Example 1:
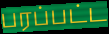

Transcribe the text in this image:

பரப்பட்ட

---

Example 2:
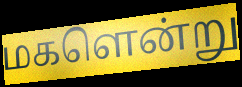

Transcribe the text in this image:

மகளென்று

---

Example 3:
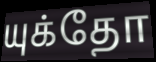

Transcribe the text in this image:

யுக்தோ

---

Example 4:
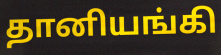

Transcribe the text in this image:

தானியங்கி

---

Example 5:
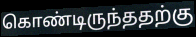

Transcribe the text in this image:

கொண்டிருந்ததற்கு